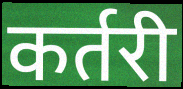
कर्तरी